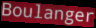
Boulanger